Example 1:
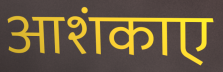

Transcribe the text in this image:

आशंकाए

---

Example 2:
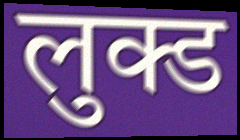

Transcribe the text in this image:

लुक्ड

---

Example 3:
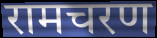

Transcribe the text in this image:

रामचरण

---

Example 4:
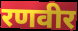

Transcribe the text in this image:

रणवीर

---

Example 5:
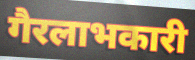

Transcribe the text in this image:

गैरलाभकारी